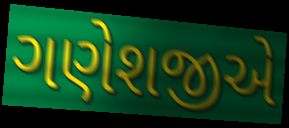
ગણેશજીએ